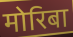
मोरिबा